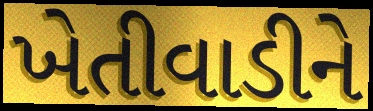
ખેતીવાડીને